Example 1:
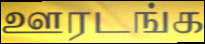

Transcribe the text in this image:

ஊரடங்க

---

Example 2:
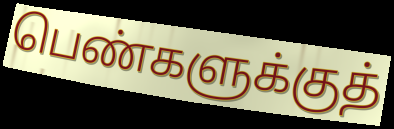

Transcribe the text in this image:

பெண்களுக்குத்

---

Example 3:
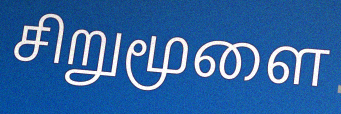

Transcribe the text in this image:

சிறுமூளை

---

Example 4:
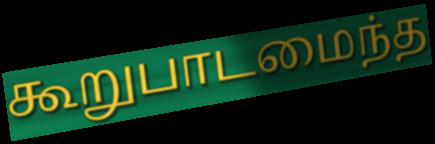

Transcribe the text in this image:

கூறுபாடமைந்த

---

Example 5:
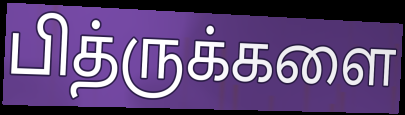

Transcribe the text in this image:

பித்ருக்களை